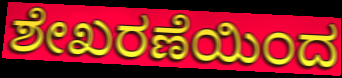
ಶೇಖರಣೆಯಿಂದ